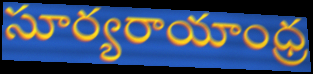
సూర్యరాయాంధ్ర